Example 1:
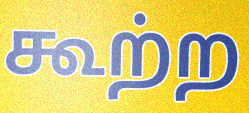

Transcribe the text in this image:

கூற்ற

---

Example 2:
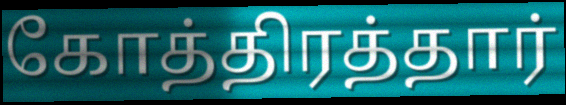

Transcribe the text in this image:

கோத்திரத்தார்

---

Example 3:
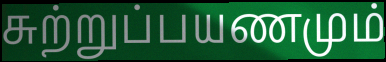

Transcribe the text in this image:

சுற்றுப்பயணமும்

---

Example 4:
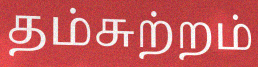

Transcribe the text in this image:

தம்சுற்றம்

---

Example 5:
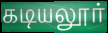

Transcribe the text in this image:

கடியலூர்